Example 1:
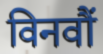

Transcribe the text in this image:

विनवौं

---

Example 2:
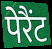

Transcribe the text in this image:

पेरैंट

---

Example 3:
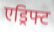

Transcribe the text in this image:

एड्रिफ्ट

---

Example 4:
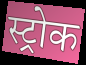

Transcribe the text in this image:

स्ट्रोक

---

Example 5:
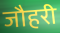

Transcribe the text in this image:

जौहरी